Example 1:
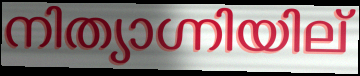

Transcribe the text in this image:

നിത്യാഗ്നിയില്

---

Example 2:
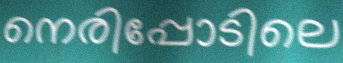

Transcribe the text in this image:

നെരിപ്പോടിലെ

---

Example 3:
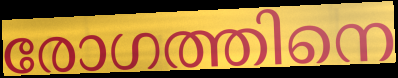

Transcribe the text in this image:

രോഗത്തിനെ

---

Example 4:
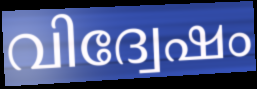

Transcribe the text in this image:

വിദ്വേഷം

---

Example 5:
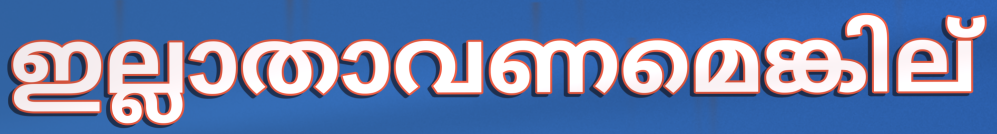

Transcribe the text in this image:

ഇല്ലാതാവണമെങ്കില്